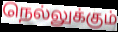
நெல்லுக்கும்